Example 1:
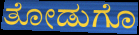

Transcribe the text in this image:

ತೋಡುಗೊ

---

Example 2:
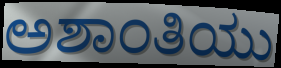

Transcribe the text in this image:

ಅಶಾಂತಿಯು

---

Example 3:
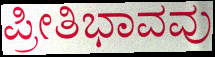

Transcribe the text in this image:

ಪ್ರೀತಿಭಾವವು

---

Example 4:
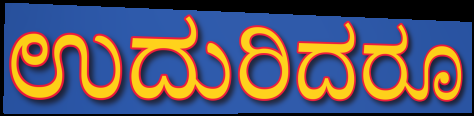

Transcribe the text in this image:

ಉದುರಿದರೂ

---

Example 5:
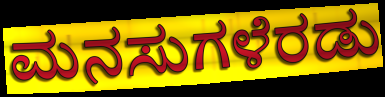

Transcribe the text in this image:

ಮನಸುಗಳೆರಡು